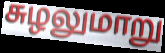
சுழலுமாறு